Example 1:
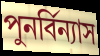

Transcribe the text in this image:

পুনর্বিন্যাস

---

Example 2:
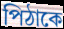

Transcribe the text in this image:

পিঠাকে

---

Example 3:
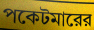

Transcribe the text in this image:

পকেটমারের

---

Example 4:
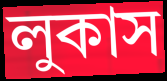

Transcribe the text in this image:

লুকাস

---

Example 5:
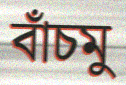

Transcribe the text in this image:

বাঁচমু